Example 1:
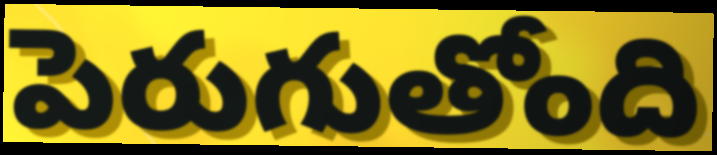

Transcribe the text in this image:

పెరుగుతోంది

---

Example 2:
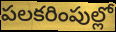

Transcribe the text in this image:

పలకరింపుల్లో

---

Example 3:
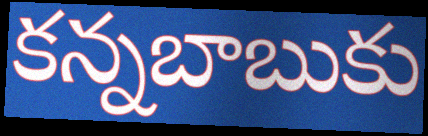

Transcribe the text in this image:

కన్నబాబుకు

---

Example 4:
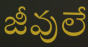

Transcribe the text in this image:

జీవులే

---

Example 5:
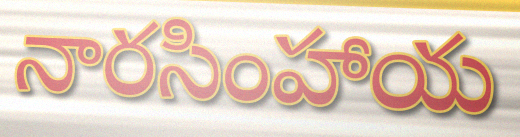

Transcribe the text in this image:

నారసింహాయ